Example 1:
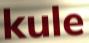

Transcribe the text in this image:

kule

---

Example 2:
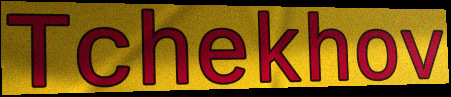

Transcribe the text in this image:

Tchekhov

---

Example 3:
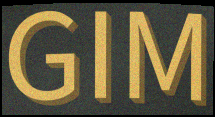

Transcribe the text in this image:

GIM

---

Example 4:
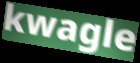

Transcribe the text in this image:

kwagle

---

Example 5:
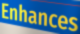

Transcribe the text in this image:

Enhances